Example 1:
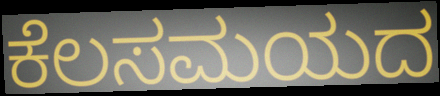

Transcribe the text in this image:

ಕೆಲಸಮಯದ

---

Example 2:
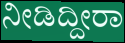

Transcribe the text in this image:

ನೀಡಿದ್ದೀರಾ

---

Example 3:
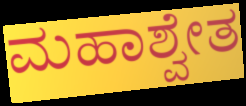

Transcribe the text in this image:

ಮಹಾಶ್ವೇತ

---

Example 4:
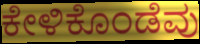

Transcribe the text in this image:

ಕೇಳಿಕೊಂಡೆವು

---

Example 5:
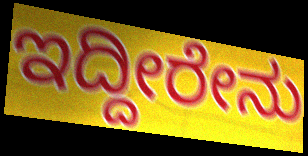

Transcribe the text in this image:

ಇದ್ದೀರೇನು